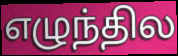
எழுந்தில